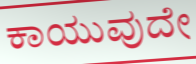
ಕಾಯುವುದೇ